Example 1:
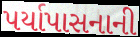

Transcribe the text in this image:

પર્યાપાસનાની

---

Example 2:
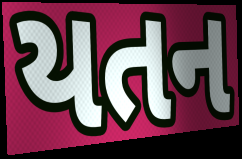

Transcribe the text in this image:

યતન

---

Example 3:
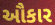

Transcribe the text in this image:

ઔકાર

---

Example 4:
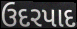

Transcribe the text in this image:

ઉદરપાદ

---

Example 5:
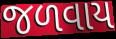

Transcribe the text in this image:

જળવાય